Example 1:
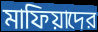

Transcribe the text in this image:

মাফিয়াদের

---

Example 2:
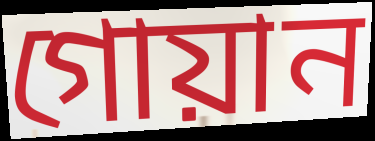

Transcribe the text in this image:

গোয়ান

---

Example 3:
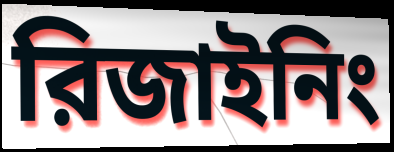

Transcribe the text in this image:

রিজাইনিং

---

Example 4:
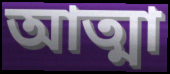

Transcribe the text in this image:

আত্মা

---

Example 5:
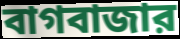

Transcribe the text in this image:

বাগবাজার